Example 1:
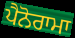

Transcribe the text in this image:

ਪੈਨੋਰਾਮਾ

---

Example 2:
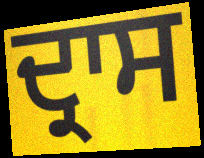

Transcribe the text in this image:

ਦ੍ਰਾਸ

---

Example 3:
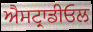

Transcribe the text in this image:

ਐਸਟ੍ਰਾਡੀਓਲ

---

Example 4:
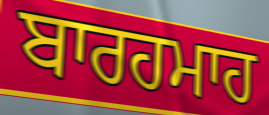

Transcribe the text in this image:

ਬਾਰਹਮਾਹ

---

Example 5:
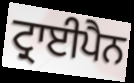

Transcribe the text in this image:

ਟ੍ਰਾਈਪੈਨ